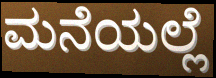
ಮನೆಯಲ್ಲೆ